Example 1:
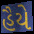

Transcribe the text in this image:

હૈયે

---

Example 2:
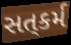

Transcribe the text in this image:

સત્‌કર્મ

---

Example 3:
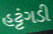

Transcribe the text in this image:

હટ્ટંગડી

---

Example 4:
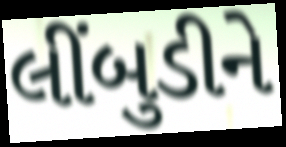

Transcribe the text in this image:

લીંબુડીને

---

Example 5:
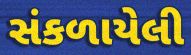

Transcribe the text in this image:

સંકળાયેલી